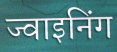
ज्वाइनिंग